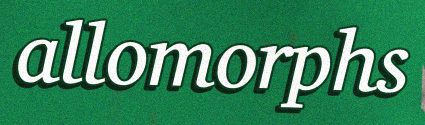
allomorphs